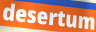
desertum